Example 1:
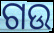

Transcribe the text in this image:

ଗଉ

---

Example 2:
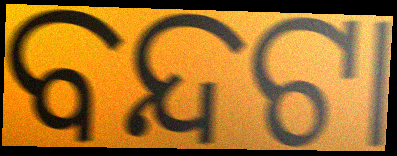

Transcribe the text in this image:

ବନ୍ଦଟା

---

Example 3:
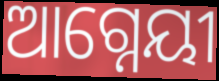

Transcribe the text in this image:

ଆଗ୍ନେୟୀ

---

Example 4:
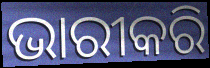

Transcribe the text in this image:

ଭାରୀକରି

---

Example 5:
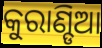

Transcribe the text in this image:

କୁରାଣ୍ଡିଆ